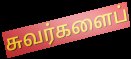
சுவர்களைப்